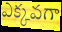
ఎక్కవగా